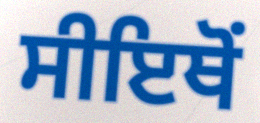
ਸੀਇਥੋਂ